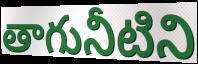
తాగునీటిని